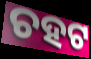
ଚହଟ